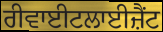
ਰੀਵਾਈਟਲਾਈਜ਼ੈਂਟ